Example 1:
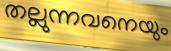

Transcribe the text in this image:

തല്ലുന്നവനെയും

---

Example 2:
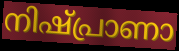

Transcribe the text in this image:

നിഷ്പ്രാണാ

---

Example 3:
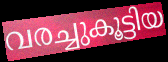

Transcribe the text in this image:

വരച്ചുകൂട്ടിയ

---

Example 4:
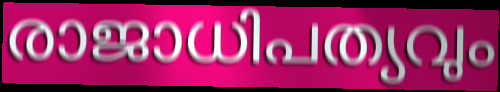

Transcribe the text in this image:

രാജാധിപത്യവും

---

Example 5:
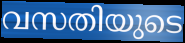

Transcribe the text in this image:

വസതിയുടെ